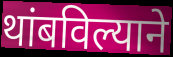
थांबविल्याने